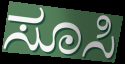
ಸೂಸಿ